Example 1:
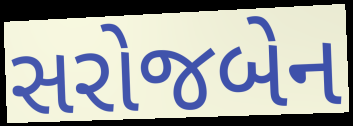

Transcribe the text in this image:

સરોજબેન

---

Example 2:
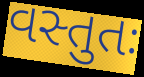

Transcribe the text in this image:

વસ્તુતઃ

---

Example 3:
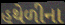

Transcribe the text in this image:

હથેળીના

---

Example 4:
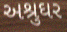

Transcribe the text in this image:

અશ્રુઘર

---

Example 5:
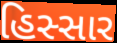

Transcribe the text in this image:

હિસ્સાર